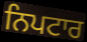
ਨਿਪਟਾਰ